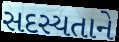
સદસ્યતાને